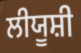
ਲੀਯੂਸ਼ੀ